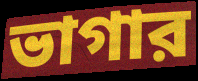
ভাগার